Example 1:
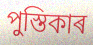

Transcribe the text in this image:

পুস্তিকাৰ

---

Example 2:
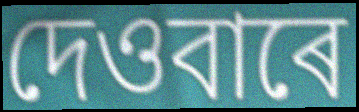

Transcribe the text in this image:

দেওবাৰে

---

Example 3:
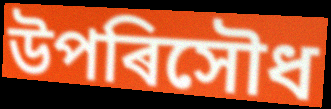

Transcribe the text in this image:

উপৰিসৌধ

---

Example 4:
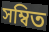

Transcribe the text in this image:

সম্বিত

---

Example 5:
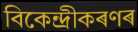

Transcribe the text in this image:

বিকেন্দ্ৰীকৰণৰ